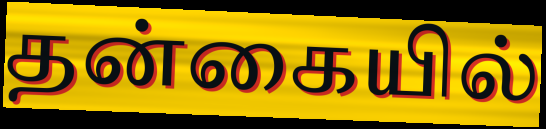
தன்கையில்